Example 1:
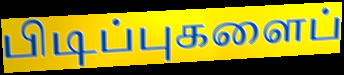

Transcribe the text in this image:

பிடிப்புகளைப்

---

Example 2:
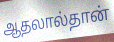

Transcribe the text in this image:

ஆதலால்தான்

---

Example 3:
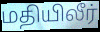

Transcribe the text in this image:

மதியிலீர்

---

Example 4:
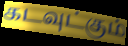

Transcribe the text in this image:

கடவுட்கும்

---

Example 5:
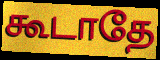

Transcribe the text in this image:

கூடாதே